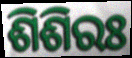
ଶିଶିରଃ